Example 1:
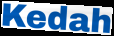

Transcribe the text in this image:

Kedah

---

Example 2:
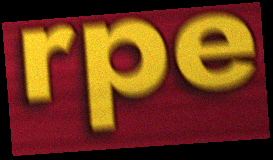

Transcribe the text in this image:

rpe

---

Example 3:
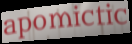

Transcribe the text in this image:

apomictic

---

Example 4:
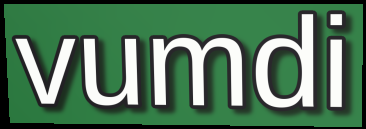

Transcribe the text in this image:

vumdi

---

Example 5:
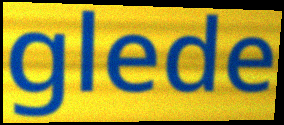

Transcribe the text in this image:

glede